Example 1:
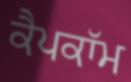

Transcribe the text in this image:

ਕੈਪਕਾੱਮ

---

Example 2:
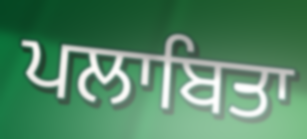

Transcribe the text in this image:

ਪਲਾਬਿਤਾ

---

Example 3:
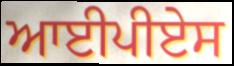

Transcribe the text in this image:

ਆਈਪੀਏਸ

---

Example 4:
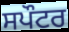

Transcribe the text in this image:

ਸਪੌਟਰ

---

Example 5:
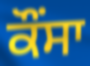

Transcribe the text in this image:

ਕੌਂਸਾ